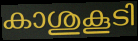
കാശുകൂടി